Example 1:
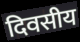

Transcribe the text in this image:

दिवसीय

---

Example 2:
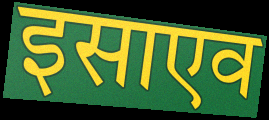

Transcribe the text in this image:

इसाएव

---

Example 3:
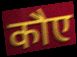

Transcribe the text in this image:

कौए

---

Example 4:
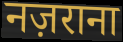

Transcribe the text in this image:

नज़राना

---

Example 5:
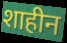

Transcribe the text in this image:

शाहीन